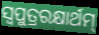
ସ୍ଵପୁତ୍ରରକ୍ଷାର୍ଥମ୍